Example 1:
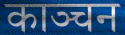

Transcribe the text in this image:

काञ्चन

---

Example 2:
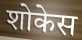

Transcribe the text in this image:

शोकेस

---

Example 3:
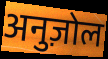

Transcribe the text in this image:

अनुज़ोल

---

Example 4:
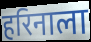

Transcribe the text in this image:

हरिनाला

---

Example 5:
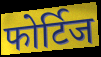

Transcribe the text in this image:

फोर्टिज